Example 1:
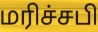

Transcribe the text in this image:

மரிச்சபி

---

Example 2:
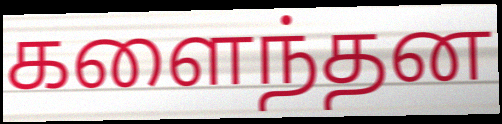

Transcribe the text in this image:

களைந்தன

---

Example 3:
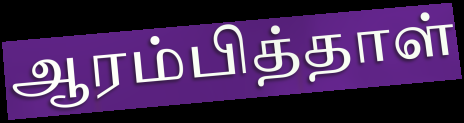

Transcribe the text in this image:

ஆரம்பித்தாள்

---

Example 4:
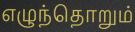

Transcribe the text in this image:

எழுந்தொறும்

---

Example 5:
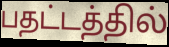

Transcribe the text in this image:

பதட்டத்தில்